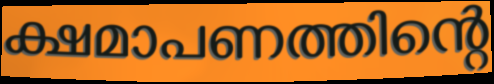
ക്ഷമാപണത്തിന്റെ